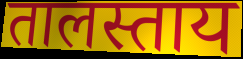
तालस्ताय